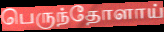
பெருந்தோளாய்